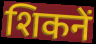
शिकनें